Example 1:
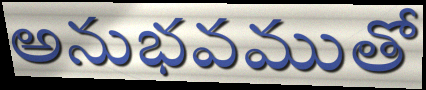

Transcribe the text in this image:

అనుభవముతో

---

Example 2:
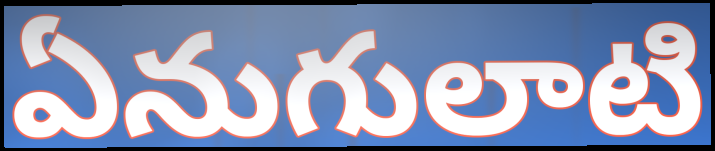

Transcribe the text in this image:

ఏనుగులాటి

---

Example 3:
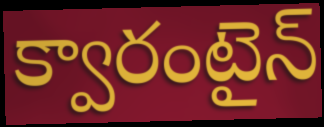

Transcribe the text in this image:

క్వారంటైన్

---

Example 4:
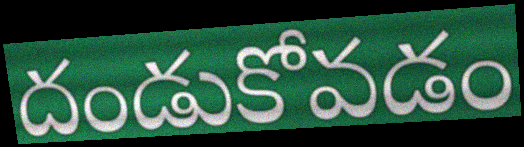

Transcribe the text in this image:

దండుకోవడం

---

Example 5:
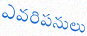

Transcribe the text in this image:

ఎవరిపనులు